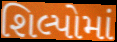
શિલ્પોમાં